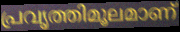
പ്രവൃത്തിമൂലമാണ്